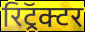
रिट्रॅक्टर